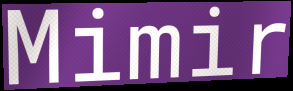
Mimir